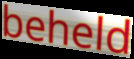
beheld